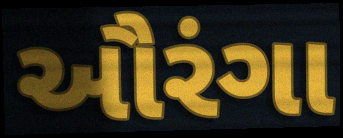
ઔરંગા